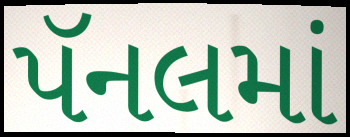
પૅનલમાં